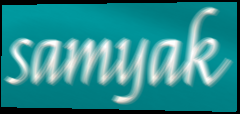
samyak